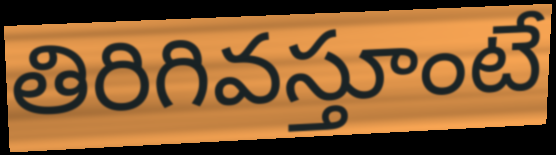
తిరిగివస్తూంటే